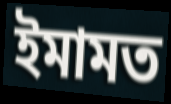
ইমামত